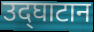
उद्घाटान